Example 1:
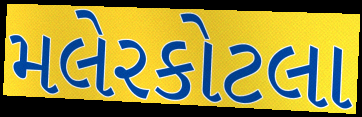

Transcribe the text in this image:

મલેરકોટલા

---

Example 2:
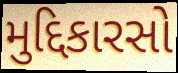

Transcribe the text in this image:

મુદ્દિકારસો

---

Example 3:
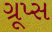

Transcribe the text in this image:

ગ્રૂપ્સ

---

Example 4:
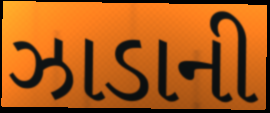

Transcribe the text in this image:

ઝાડાની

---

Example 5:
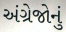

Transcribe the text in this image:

અંગ્રેજોનું